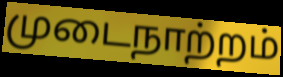
முடைநாற்றம்